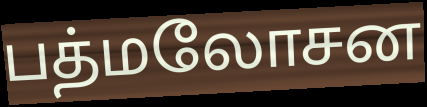
பத்மலோசன